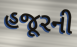
હજૂરની